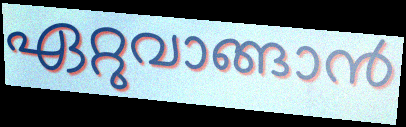
ഏറ്റുവാങ്ങാൻ